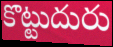
కొట్టుదురు